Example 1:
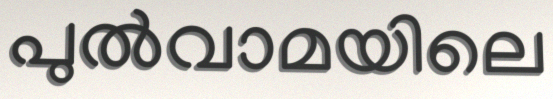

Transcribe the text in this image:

പുൽവാമയിലെ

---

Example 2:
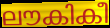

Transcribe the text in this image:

ലൗകികീ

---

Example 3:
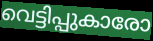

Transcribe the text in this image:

വെട്ടിപ്പുകാരോ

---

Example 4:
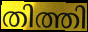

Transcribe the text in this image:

തിത്തി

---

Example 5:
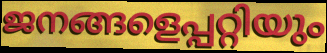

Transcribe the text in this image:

ജനങ്ങളെപ്പറ്റിയും